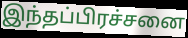
இந்தப்பிரச்சனை